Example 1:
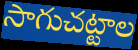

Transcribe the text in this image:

సాగుచట్టాల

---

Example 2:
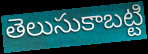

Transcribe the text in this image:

తెలుసుకాబట్టి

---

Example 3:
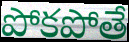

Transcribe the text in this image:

పోకపోతే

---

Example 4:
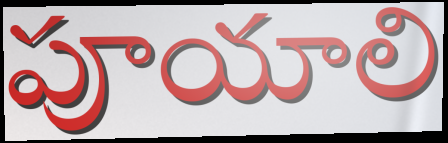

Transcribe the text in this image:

పూయాలి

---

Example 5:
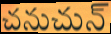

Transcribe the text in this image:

చనుచున్